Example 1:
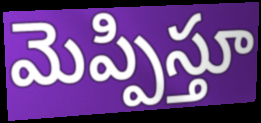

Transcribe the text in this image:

మెప్పిస్తూ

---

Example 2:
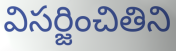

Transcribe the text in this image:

విసర్జించితిని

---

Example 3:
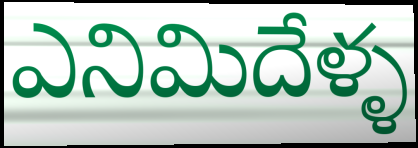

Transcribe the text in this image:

ఎనిమిదేళ్ళ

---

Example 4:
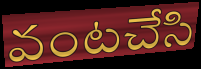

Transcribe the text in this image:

వంటచేసి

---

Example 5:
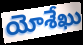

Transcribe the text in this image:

యోశేఖు